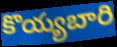
కొయ్యబారి